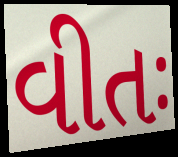
વીતઃ